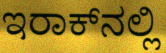
ಇರಾಕ್‍ನಲ್ಲಿ